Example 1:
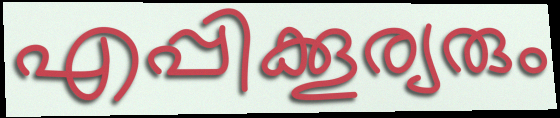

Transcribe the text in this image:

എപ്പിക്കൂര്യരും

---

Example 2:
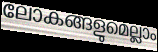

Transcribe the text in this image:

ലോകങ്ങളുമെല്ലാം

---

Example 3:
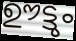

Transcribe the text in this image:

ഊട്ടും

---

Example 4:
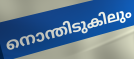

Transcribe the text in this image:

നൊന്തിടുകിലും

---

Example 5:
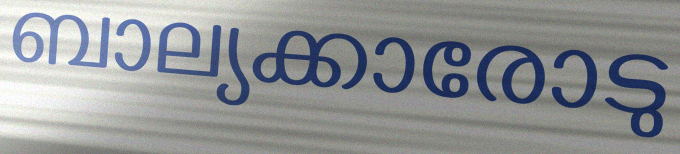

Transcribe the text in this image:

ബാല്യക്കാരോടു